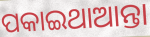
ପକାଇଥାଆନ୍ତା